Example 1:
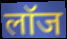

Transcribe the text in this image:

लॉज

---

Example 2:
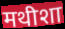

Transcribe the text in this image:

मथीशा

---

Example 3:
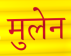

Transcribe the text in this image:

मुलेन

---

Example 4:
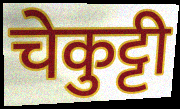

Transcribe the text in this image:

चेकुट्टी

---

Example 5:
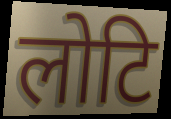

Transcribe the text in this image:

लोटि